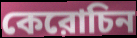
কেরোচিন